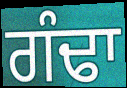
ਗੰਢਾ